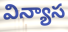
విన్యాస